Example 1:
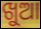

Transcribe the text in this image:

ଖୁଆ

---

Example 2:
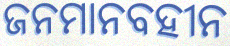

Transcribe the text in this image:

ଜନମାନବହୀନ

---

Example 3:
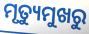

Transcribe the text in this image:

ମୃତ୍ୟୁମୁଖରୁ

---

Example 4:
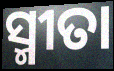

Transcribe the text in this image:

ସ୍ମୀତା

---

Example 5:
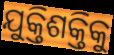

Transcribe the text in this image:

ଯୁକ୍ତିଶକ୍ତିକୁ